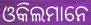
ଓକିଲମାନେ